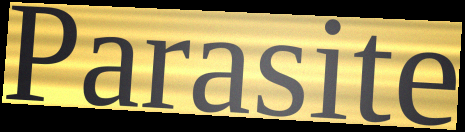
Parasite